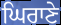
ਘਿਰਾਣੇ